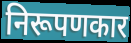
निरूपणकार